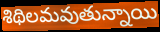
శిథిలమవుతున్నాయి